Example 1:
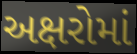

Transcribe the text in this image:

અક્ષરોમાં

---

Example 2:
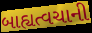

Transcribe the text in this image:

બાહ્યત્વચાની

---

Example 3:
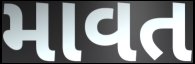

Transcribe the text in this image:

માવત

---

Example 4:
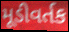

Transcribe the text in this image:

મૂડીવર્તક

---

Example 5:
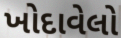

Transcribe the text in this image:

ખોદાવેલો